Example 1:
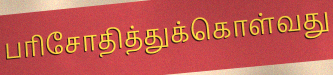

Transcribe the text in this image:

பரிசோதித்துக்கொள்வது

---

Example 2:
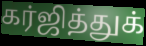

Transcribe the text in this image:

கர்ஜித்துக்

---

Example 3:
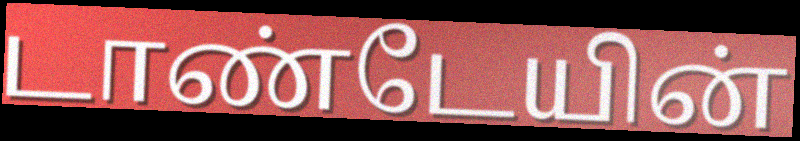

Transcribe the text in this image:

டாண்டேயின்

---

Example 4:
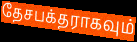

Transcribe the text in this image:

தேசபக்தராகவும்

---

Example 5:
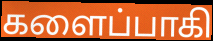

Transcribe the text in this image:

களைப்பாகி